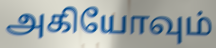
அகியோவும்